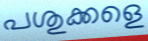
പശുക്കളെ